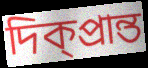
দিক্‌প্রান্ত